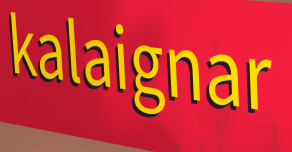
kalaignar